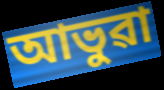
আভুৱা